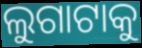
ଲୁଗାଟାକୁ